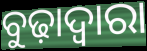
ବୁଢ଼ାଦ୍ୱାରା